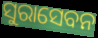
ସୁରାସେବନ